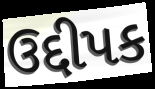
ઉદ્દીપક